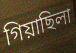
গিয়াছিলা